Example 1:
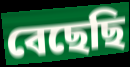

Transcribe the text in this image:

বেছেছি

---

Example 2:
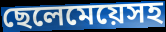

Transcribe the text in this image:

ছেলেমেয়েসহ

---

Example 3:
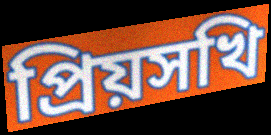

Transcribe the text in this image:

প্রিয়সখি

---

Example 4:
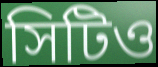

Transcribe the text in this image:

সিটিও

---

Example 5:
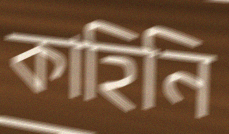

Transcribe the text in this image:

কাহিনি